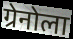
ग्रेनोला